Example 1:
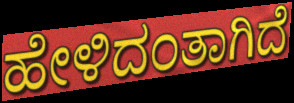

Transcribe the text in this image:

ಹೇಳಿದಂತಾಗಿದೆ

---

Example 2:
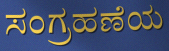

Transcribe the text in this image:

ಸಂಗ್ರಹಣೆಯ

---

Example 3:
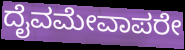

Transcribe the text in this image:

ದೈವಮೇವಾಪರೇ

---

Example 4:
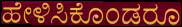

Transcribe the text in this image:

ಹೇಳಿಸಿಕೊಂಡರೂ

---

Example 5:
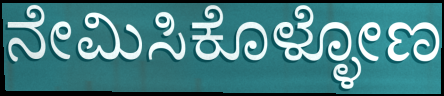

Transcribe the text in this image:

ನೇಮಿಸಿಕೊಳ್ಳೋಣ